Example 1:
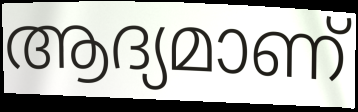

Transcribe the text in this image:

ആദ്യമാണ്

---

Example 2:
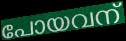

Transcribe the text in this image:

പോയവന്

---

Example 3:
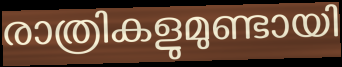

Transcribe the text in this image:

രാത്രികളുമുണ്ടായി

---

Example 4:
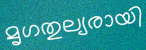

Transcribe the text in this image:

മൃഗതുല്യരായി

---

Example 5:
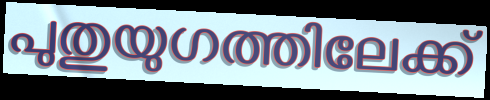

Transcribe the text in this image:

പുതുയുഗത്തിലേക്ക്